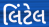
લિંટેલ